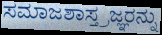
ಸಮಾಜಶಾಸ್ತ್ರಜ್ಞರನ್ನು